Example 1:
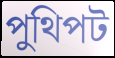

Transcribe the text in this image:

পুথিপট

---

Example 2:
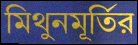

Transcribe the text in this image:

মিথুনমূর্তির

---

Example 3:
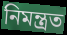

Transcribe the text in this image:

নিমন্ত্রত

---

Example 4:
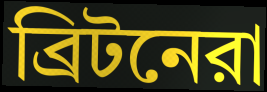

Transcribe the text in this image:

ব্রিটনেরা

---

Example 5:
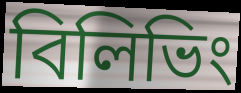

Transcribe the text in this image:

বিলিভিং